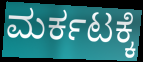
ಮರ್ಕಟಕ್ಕೆ